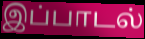
இப்பாடல்